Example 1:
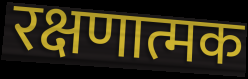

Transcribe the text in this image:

रक्षणात्मक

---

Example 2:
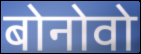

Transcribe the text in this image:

बोनोवो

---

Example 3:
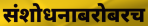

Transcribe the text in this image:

संशोधनाबरोबरच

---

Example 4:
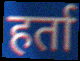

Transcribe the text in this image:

हर्ता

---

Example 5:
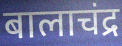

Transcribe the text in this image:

बालाचंद्र